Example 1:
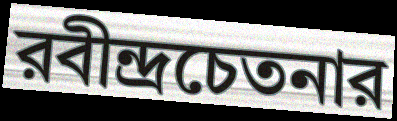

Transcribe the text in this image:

রবীন্দ্রচেতনার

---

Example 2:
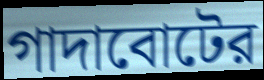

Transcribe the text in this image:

গাদাবোটের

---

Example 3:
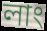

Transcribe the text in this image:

লাং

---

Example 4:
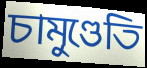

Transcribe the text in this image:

চামুণ্ডেতি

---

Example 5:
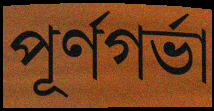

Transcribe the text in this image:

পূর্ণগর্ভা